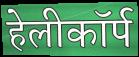
हेलीकॉर्प